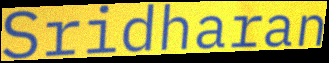
Sridharan